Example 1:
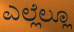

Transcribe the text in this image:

ಎಲ್ಲೆಲ್ಲೂ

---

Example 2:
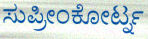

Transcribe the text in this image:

ಸುಪ್ರೀಂಕೋರ್ಟ್ನ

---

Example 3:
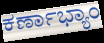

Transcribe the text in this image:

ಕರ್ಣಾಭ್ಯಾಂ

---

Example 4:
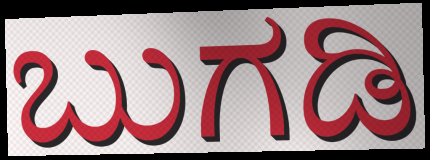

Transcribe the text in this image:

ಬುಗಡಿ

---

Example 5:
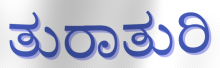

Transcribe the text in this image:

ತುರಾತುರಿ